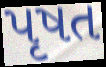
પૃષત